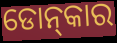
ଡୋନ୍‍କାର